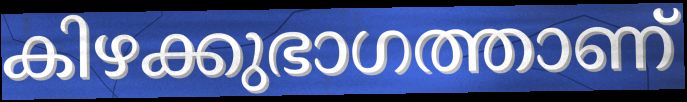
കിഴക്കുഭാഗത്താണ്